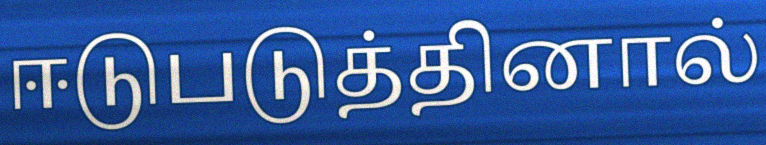
ஈடுபடுத்தினால்